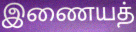
இணையத்